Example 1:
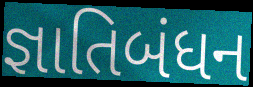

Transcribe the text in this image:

જ્ઞાતિબંધન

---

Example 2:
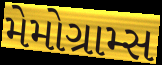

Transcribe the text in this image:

મેમોગ્રામ્સ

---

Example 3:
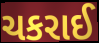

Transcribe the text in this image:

ચકરાઈ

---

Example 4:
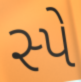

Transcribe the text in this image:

સ્પે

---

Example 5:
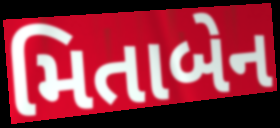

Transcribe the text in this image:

મિતાબેન